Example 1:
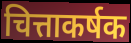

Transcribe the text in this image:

चित्ताकर्षक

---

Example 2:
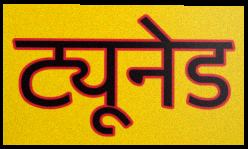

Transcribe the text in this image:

ट्यूनेड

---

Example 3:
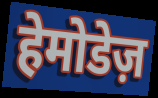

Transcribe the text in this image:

हेमोडेज़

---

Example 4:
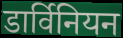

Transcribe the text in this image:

डार्विनियन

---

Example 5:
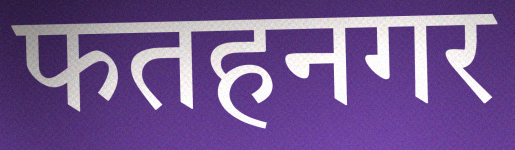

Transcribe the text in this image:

फतहनगर